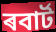
ৰবাৰ্ট